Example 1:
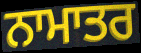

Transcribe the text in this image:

ਨਾਮਾਤਰ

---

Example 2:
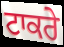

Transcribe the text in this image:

ਟਾਕਰੇ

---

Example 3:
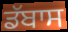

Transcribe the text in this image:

ਡੱਬਾਸ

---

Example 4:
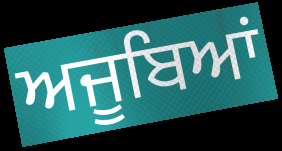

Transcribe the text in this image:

ਅਜੂਬਿਆਂ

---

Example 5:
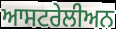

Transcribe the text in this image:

ਆਸਟਰੇਲੀਅਨ